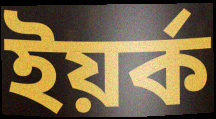
ইয়ৰ্ক